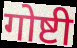
गोष्टी